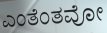
ಎಂತೆಂತವೋ